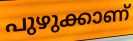
പുഴുക്കാണ്